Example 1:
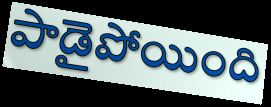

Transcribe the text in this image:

పాడైపోయింది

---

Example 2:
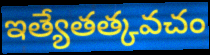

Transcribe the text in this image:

ఇత్యేతత్కవచం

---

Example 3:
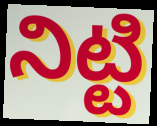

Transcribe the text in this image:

నిట్టి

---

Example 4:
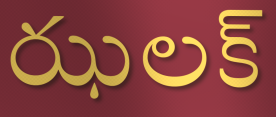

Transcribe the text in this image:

ఝలక్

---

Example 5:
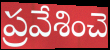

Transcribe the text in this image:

ప్రవేశించె